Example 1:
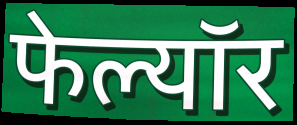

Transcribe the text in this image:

फेल्यॉर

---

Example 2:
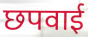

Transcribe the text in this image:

छपवाई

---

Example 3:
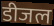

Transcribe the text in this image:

डीजल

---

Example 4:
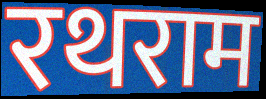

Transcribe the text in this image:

रथराम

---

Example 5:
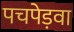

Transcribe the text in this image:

पचपेड़वा